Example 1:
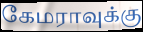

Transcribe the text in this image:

கேமராவுக்கு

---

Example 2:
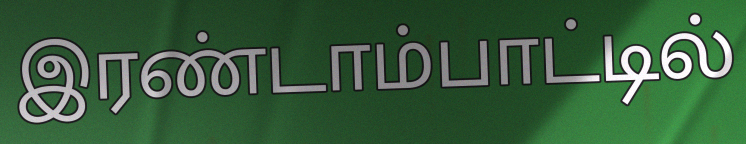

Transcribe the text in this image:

இரண்டாம்பாட்டில்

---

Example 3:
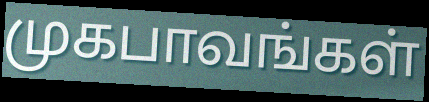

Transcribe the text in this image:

முகபாவங்கள்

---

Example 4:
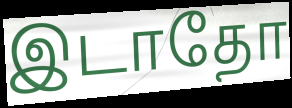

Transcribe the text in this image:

இடாதோ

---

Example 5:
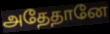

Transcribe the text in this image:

அதேதானே